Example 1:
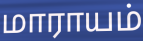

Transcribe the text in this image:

மாராயம்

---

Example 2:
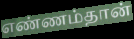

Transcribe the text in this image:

எண்ணம்தான்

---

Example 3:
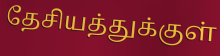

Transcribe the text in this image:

தேசியத்துக்குள்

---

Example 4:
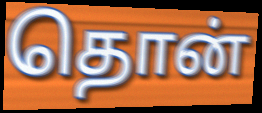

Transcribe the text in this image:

தொன்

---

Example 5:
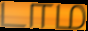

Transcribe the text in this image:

டாம